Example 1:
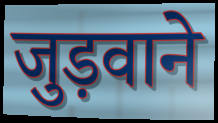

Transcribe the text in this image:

जुड़वाने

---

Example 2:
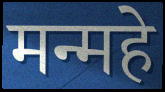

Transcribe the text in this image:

मन्महे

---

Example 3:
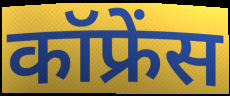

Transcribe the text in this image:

कॉफ्रेंस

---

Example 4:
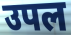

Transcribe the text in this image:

उपल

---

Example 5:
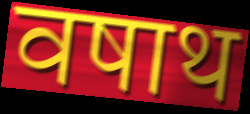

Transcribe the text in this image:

वषाथ